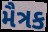
મૈત્રક